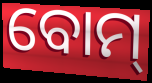
ବୋମ୍